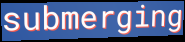
submerging